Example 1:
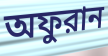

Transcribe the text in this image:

অফুরান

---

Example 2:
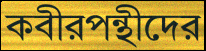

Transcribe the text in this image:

কবীরপন্থীদের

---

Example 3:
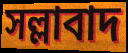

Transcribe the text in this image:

সল্লাবাদ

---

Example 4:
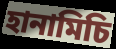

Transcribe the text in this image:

হানামিচি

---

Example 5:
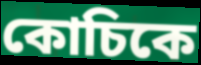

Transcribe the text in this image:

কোচিকে